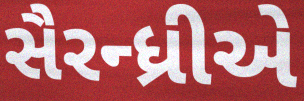
સૈરન્ધ્રીએ